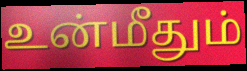
உன்மீதும்